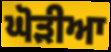
ਘੋੜੀਆ